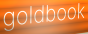
goldbook